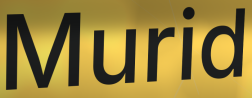
Murid